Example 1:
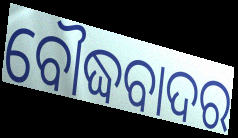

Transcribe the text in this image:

ବୌଦ୍ଧବାଦର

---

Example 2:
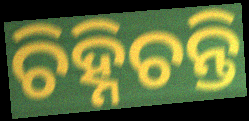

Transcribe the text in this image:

ଚିହ୍ନିଚନ୍ତି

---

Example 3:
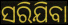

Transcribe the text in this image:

ସରିଯିବା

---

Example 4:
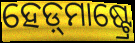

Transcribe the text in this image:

ହେଡ଼୍‍ମାଷ୍ଟ୍ରେ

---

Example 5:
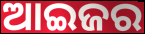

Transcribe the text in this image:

ଆଇଜର